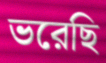
ভরেছি